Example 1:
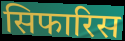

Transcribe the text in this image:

सिफारिस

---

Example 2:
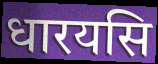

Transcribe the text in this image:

धारयसि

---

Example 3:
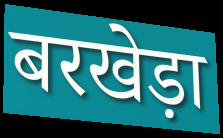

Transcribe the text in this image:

बरखेड़ा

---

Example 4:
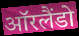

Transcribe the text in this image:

ऑरलैंडो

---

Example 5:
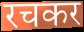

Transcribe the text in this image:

रचकर